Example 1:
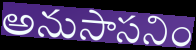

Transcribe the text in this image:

అనుసాసనిం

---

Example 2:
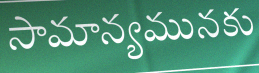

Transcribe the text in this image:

సామాన్యమునకు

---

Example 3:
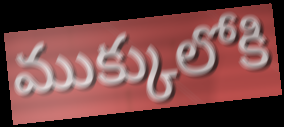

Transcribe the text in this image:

ముక్కులోకి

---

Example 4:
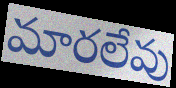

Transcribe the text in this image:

మారలేవు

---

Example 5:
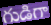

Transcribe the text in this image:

గుడిగా